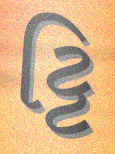
ટ્ટિ